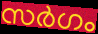
സർഗം